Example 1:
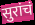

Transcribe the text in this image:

सुरांचं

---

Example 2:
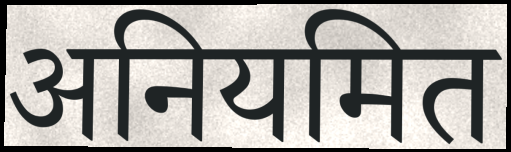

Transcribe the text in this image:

अनियमित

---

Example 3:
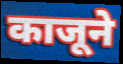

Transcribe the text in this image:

काजूने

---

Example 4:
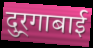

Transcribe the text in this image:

दुर्गाबाई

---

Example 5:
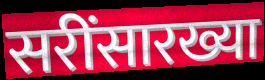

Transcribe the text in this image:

सरींसारख्या